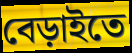
বেড়াইতে